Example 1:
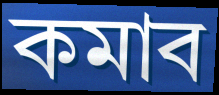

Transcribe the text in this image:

কমাব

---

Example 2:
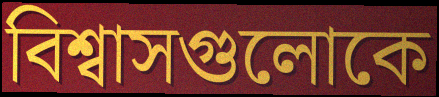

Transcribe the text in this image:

বিশ্বাসগুলোকে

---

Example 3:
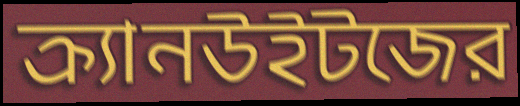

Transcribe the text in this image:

ক্র্যানউইটজের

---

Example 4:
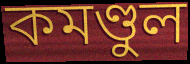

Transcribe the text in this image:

কমণ্ডুল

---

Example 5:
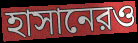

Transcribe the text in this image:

হাসানেরও